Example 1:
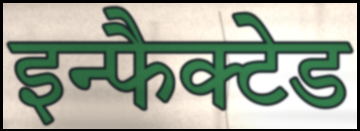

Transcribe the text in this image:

इन्फैक्टेड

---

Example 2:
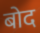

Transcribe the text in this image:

बोद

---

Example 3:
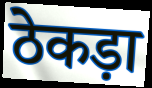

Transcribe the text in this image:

ठेकड़ा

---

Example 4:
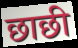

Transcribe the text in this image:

छाछी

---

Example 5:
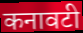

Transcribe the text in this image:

कनावटी